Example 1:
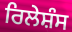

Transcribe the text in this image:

ਰਿਲੇਸ਼ੰਸ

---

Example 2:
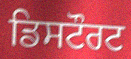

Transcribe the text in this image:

ਡਿਸਟੌਰਟ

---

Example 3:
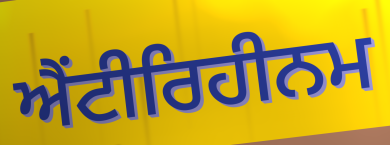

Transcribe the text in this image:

ਐਂਟੀਰਿਹੀਨਮ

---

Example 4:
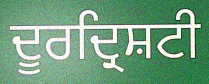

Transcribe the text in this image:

ਦੂਰਦ੍ਰਿਸ਼ਟੀ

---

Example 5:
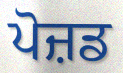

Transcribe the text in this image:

ਪੋਜ਼ਡ